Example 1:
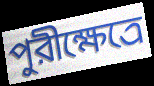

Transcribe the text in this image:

পুরীক্ষেত্রে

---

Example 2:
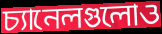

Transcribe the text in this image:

চ্যানেলগুলোও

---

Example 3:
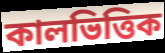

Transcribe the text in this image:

কালভিত্তিক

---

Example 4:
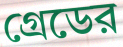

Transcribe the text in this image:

গ্রেডের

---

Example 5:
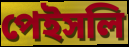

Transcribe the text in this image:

পেইসলি